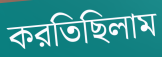
করতিছিলাম